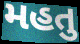
મહતુ